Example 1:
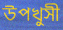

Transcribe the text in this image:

উপখুসী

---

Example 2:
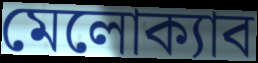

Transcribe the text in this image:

মেলোক্যাব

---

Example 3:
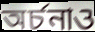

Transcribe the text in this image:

অর্চনাও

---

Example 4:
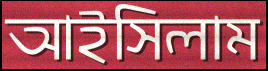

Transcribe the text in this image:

আইসিলাম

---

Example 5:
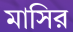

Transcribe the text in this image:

মাসির